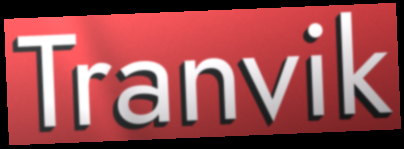
Tranvik